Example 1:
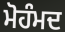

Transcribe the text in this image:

ਮੋਹੰਮਦ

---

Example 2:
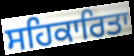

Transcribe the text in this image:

ਸਹਿਕਾਰਿਤਾ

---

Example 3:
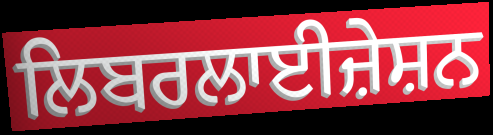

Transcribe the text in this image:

ਲਿਬਰਲਾਈਜ਼ੇਸ਼ਨ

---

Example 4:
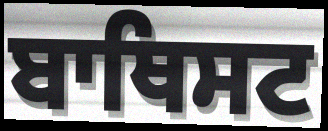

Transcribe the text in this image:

ਬਾਥਿਸਟ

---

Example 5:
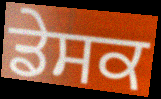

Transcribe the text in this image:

ਡੇਸਕ